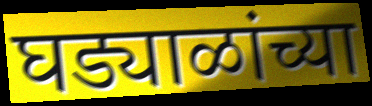
घड्याळांच्या